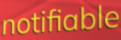
notifiable